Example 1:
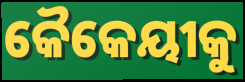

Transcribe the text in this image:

କୈକେୟୀକୁ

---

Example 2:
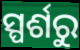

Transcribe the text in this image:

ସ୍ପର୍ଶରୁ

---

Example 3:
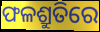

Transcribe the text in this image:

ଫଳଶ୍ରୁତିରେ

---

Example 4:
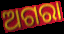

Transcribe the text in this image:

ଅଗରା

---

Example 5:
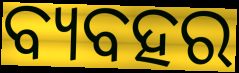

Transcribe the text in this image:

ବ୍ୟବହର